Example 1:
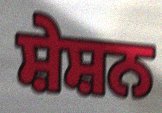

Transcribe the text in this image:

ਸ਼ੇਸ਼ਨ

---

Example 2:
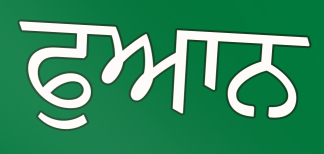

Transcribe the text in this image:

ਫੁਆਨ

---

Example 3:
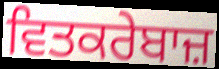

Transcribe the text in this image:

ਵਿਤਕਰੇਬਾਜ਼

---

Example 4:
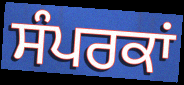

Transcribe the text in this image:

ਸੰਪਰਕਾਂ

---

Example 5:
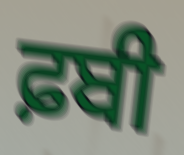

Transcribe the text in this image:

ਫ਼ਬੀ